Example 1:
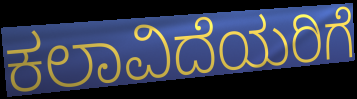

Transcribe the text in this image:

ಕಲಾವಿದೆಯರಿಗೆ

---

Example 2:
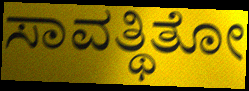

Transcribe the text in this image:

ಸಾವತ್ಥಿತೋ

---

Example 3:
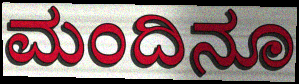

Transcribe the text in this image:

ಮಂದಿನೂ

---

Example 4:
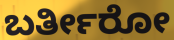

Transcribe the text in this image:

ಬರ್ತೀರೋ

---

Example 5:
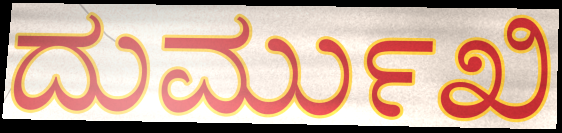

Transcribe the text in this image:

ದುರ್ಮುಖಿ